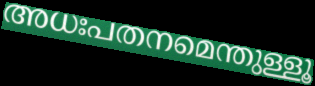
അധഃപതനമെന്തുള്ളൂ